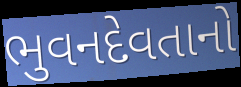
ભુવનદેવતાનો